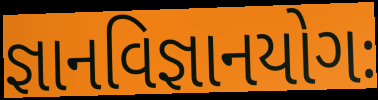
જ્ઞાનવિજ્ઞાનયોગઃ